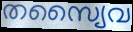
തസ്യൈവ